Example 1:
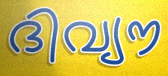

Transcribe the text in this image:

ദിവ്യൗ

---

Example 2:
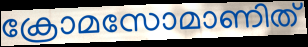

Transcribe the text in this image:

ക്രോമസോമാണിത്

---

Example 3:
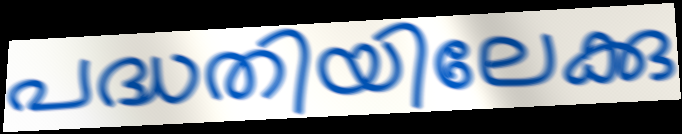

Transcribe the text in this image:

പദ്ധതിയിലേക്കു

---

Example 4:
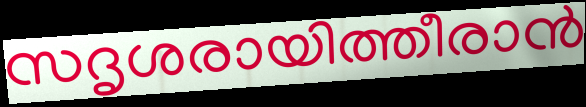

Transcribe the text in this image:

സദൃശരായിത്തീരാൻ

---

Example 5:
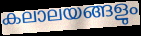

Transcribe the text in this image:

കലാലയങ്ങളും